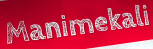
Manimekali